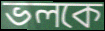
ভলকে